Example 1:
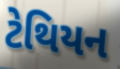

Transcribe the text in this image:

ટેથિયન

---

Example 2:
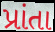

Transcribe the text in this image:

પ્રાંતા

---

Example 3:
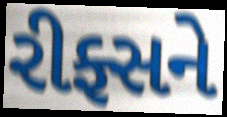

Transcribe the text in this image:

રીફ્સને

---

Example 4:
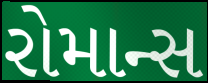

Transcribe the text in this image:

રોમાન્સ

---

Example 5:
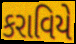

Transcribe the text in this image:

કરાવિયે